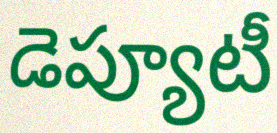
డెప్యూటీ